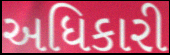
અધિકારી